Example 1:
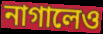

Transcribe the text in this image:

নাগালেও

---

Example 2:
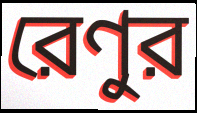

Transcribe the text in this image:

রেণুর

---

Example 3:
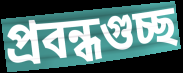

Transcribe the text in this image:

প্রবন্ধগুচ্ছ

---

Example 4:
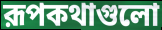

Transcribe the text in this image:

রূপকথাগুলো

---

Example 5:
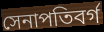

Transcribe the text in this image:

সেনাপতিবর্গ